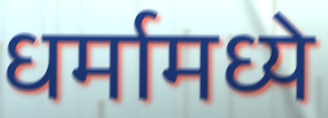
धर्मामध्ये